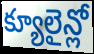
క్యూలైన్లో